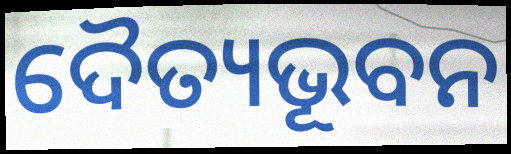
ଦୈତ୍ୟଭୂବନ